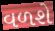
વળશે